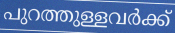
പുറത്തുള്ളവർക്ക്